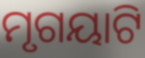
ମୃଗୟାଟି